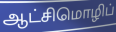
ஆட்சிமொழிப்